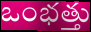
ఒంభత్తు